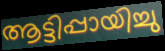
ആട്ടിപ്പായിച്ചു